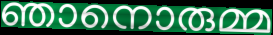
ഞാനൊരുമ്മ